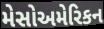
મેસોઅમેરિકન